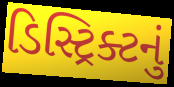
ડિસ્ટ્રિક્ટનું